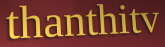
thanthitv